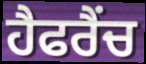
ਹੈਫਰੈਂਚ